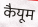
कैयूम